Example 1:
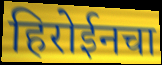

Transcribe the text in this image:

हिरोईनचा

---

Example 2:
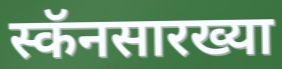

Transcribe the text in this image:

स्कॅनसारख्या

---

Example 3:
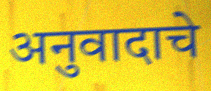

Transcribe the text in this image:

अनुवादाचे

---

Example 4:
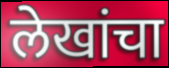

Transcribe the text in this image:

लेखांचा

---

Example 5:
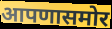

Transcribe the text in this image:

आपणासमोर